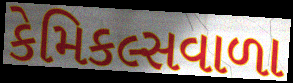
કેમિકલ્સવાળા